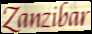
Zanzibar